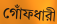
গোঁফধারী